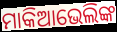
ମାକିଆଭେଲିଙ୍କ